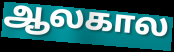
ஆலகால